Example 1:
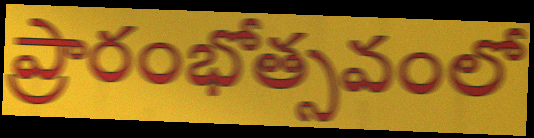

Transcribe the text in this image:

ప్రారంభోత్సవంలో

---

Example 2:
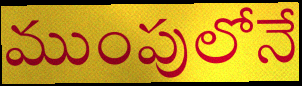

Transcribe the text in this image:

ముంపులోనే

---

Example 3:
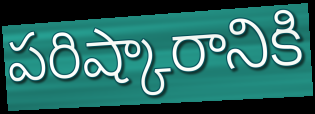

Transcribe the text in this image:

పరిష్కారానికి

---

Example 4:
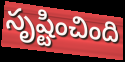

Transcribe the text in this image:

సృష్టించింది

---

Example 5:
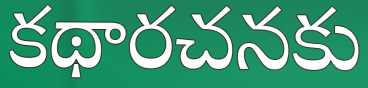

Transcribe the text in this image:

కథారచనకు